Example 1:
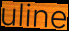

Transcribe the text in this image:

uline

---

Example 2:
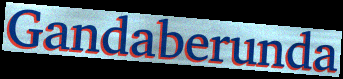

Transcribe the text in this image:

Gandaberunda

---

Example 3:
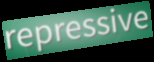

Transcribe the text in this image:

repressive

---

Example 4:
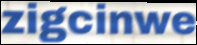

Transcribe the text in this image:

zigcinwe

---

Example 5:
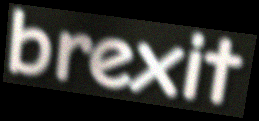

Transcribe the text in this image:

brexit